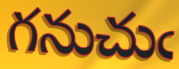
గనుచుఁ